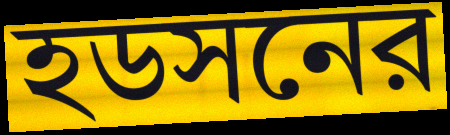
হডসনের